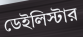
ডেইলিস্টার